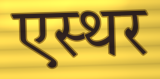
एस्थर